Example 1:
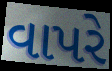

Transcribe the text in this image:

વાપરે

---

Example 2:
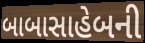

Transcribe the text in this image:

બાબાસાહેબની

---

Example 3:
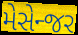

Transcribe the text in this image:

મેસેન્જર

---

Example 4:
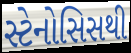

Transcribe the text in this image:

સ્ટેનોસિસથી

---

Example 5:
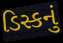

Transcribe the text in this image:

ડિસ્કનું